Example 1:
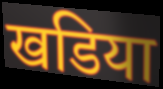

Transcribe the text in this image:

खडिया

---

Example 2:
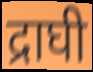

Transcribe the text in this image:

द्राघी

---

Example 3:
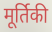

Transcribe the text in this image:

मूर्तिकी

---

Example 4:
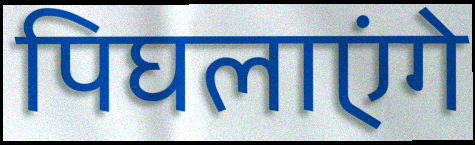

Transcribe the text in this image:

पिघलाएंगे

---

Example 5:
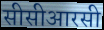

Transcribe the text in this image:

सीसीआरसी